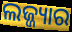
ଲଜ୍ଜ୍ୟାର